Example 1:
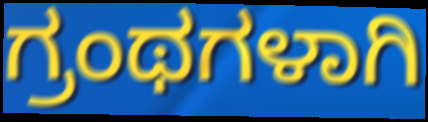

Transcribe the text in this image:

ಗ್ರಂಥಗಳಾಗಿ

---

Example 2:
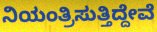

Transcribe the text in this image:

ನಿಯಂತ್ರಿಸುತ್ತಿದ್ದೇವೆ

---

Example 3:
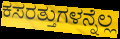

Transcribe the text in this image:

ಕಸರತ್ತುಗಳನ್ನೆಲ್ಲ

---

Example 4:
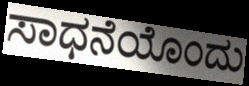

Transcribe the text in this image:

ಸಾಧನೆಯೊಂದು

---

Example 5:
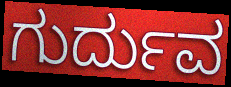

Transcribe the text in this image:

ಗುರ್ದುವ